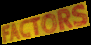
FACTORS